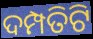
ଦମ୍ପତିଟି